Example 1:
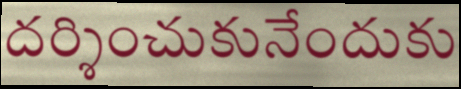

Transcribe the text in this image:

దర్శించుకునేందుకు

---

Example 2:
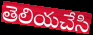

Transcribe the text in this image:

తెలియచేసి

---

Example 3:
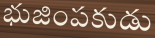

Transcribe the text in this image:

భుజింపకుడు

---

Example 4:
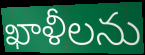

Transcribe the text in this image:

ఖాళీలను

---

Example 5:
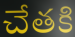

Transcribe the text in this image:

చేతకి